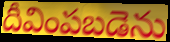
దీవింపబడెను